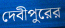
দেবীপুরের